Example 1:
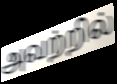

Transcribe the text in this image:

அவற்றில்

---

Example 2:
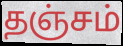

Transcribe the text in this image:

தஞ்சம்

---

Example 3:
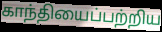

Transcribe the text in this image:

காந்தியைப்பற்றிய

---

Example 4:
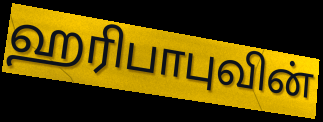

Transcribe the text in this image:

ஹரிபாபுவின்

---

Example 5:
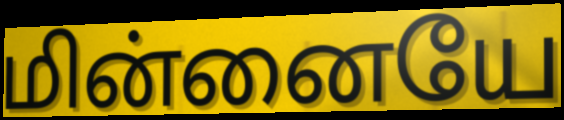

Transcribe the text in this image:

மின்னையே